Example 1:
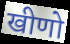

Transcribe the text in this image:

खीणो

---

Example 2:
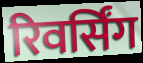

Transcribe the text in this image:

रिवर्सिंग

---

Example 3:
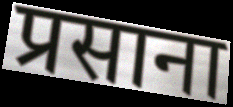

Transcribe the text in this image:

प्रसाना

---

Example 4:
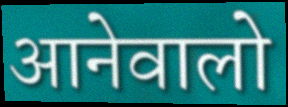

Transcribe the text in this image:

आनेवालो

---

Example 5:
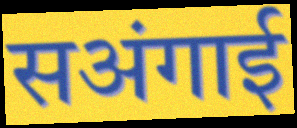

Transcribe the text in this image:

सअंगाई